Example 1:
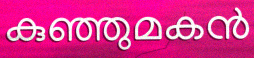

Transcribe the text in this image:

കുഞ്ഞുമകൻ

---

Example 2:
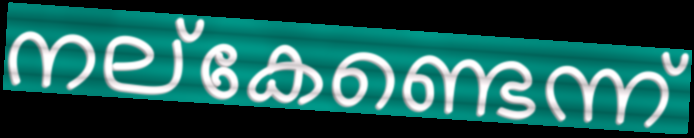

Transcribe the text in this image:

നല്കേണ്ടെന്ന്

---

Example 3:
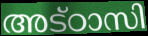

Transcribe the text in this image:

അട്ഠാസി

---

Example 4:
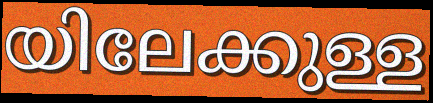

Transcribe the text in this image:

യിലേക്കുള്ള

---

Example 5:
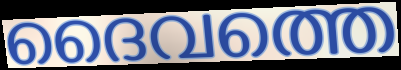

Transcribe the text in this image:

ദൈവത്തെ